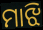
ମାଝି